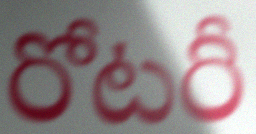
రోటరీ